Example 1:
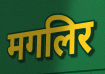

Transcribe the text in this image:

मगलिर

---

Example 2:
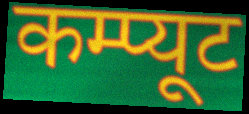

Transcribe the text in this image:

कम्प्यूट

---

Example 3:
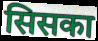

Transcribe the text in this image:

सिसका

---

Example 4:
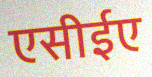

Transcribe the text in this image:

एसीईए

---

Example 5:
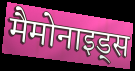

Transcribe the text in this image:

मैमोनाइड्स